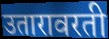
उतारावरती